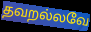
தவறல்லவே